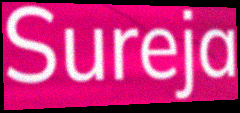
Sureja